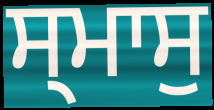
ਸ੍ਮਾਸੁ